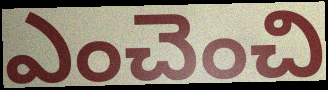
ఎంచెంచి